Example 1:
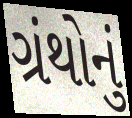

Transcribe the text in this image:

ગ્રંથોનું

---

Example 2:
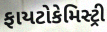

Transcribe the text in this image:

ફાયટોકેમિસ્ટ્રી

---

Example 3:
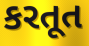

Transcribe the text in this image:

કરતૂત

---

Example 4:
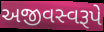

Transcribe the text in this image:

અજીવસ્વરૂપે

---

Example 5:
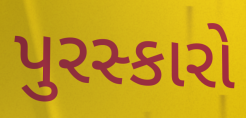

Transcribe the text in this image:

પુરસ્કારો